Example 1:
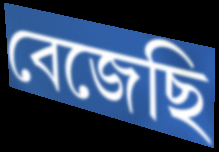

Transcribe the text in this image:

বেজেছি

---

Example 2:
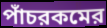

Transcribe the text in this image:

পাঁচরকমের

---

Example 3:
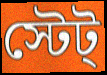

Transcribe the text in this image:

স্টেট্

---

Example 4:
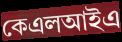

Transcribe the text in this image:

কেএলআইএ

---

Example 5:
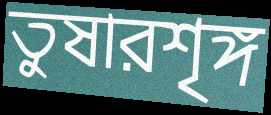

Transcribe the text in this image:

তুষারশৃঙ্গ